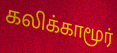
கலிக்காமூர்